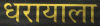
धरायाला